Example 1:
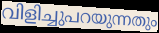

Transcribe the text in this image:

വിളിച്ചുപറയുന്നതും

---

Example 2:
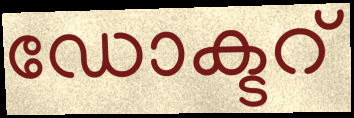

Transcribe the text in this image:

ഡോക്ടറ്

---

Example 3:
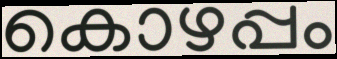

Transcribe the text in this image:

കൊഴപ്പം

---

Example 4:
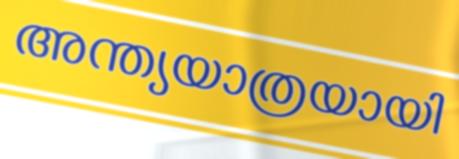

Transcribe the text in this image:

അന്ത്യയാത്രയായി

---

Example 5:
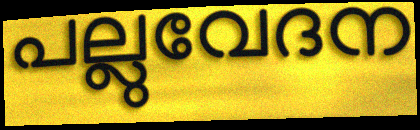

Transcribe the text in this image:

പല്ലുവേദന